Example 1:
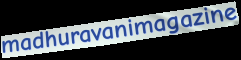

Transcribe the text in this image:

madhuravanimagazine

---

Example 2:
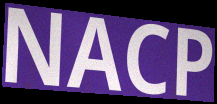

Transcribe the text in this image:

NACP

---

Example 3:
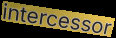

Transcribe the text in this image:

intercessor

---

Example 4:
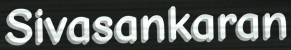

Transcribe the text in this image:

Sivasankaran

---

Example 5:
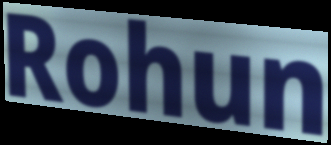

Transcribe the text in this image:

Rohun